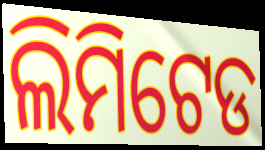
ଲିମିଟେଡ